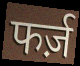
फर्ज़